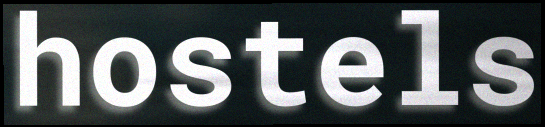
hostels